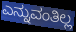
ಎನ್ನುವಂತಿಲ್ಲ